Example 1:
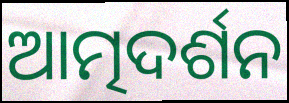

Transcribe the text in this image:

ଆତ୍ମଦର୍ଶନ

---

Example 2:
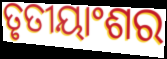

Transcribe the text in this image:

ତୃତୀୟାଂଶର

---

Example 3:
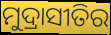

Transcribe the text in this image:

ମୁଦ୍ରାସୀତିର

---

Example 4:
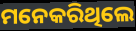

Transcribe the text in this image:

ମନେକରିଥିଲେ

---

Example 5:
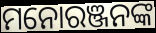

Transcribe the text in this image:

ମନୋରଞ୍ଜନଙ୍କ